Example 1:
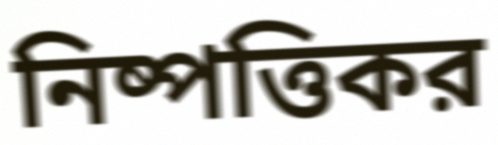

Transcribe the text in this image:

নিষ্পত্তিকর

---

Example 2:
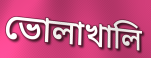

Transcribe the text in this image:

ভোলাখালি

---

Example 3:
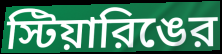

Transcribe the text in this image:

স্টিয়ারিঙের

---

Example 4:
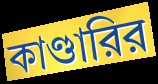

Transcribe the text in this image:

কাণ্ডারির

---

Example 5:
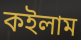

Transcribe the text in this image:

কইলাম